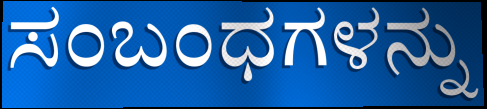
ಸಂಬಂಧಗಳನ್ನು